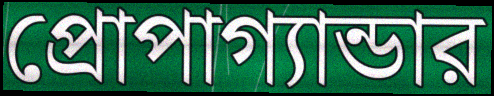
প্রোপাগ্যান্ডার